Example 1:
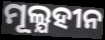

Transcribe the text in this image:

ମୂଲ୍ଯହୀନ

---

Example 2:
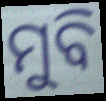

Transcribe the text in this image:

ମୁବି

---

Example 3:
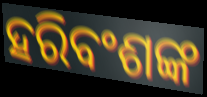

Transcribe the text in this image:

ହରିବଂଶଙ୍କ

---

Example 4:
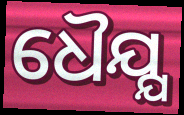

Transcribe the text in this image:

ଧୈଯ୍ଯ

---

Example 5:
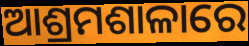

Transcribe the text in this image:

ଆଶ୍ରମଶାଳାରେ